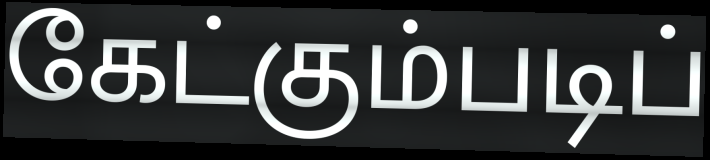
கேட்கும்படிப்